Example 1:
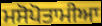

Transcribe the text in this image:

ਮਸੋਪੋਤਾਮੀਆ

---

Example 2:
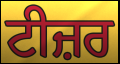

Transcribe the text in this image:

ਟੀਜ਼ਰ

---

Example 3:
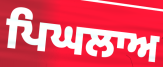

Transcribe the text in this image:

ਪਿਘਲਾਅ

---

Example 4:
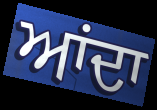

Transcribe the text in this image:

ਆਂਦਾ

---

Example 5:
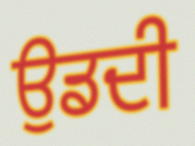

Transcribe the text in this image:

ਉਡਦੀ